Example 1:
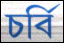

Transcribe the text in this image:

চর্বি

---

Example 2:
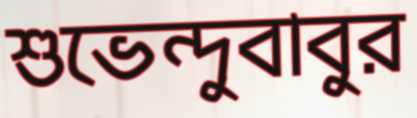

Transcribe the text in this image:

শুভেন্দুবাবুর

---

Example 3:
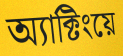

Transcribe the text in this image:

অ্যাক্টিংয়ে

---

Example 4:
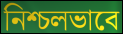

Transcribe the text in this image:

নিশ্চলভাবে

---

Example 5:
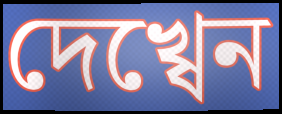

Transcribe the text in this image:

দেখ্বেন